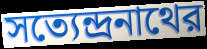
সত্যেন্দ্রনাথের